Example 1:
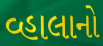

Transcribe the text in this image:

વ્હાલાનો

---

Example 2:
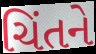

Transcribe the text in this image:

ચિંતને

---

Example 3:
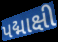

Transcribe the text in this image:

પદ્માક્ષી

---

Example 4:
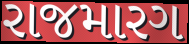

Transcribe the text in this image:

રાજમારગ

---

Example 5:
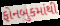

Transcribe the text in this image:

ફોનબુકમાંથી